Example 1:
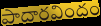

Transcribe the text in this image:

పాదారవిందం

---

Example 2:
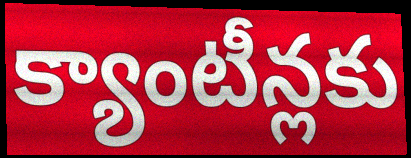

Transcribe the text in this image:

క్యాంటీన్లకు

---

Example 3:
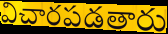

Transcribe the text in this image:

విచారపడతారు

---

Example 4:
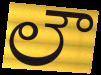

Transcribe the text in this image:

లౌ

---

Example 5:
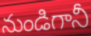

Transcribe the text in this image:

నుండిగానీ